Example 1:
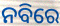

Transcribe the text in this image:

ନବିରେ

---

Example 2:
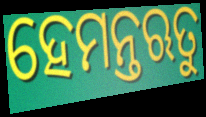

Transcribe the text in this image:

ହେମନ୍ତଋତୁ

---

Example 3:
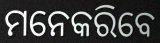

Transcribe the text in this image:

ମନେକରିବେ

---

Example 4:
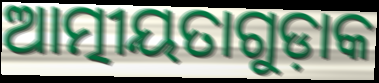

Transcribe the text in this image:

ଆତ୍ମୀୟତାଗୁଡ଼ାକ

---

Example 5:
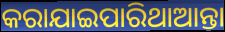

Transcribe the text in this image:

କରାଯାଇପାରିଥାଆନ୍ତା